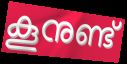
കൂനുണ്ട്